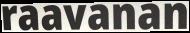
raavanan